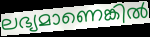
ലഭ്യമാണെങ്കിൽ